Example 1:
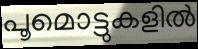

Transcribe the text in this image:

പൂമൊട്ടുകളിൽ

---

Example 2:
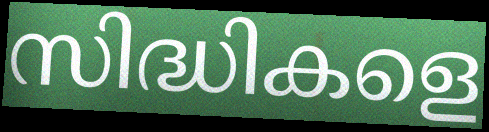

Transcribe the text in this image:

സിദ്ധികളെ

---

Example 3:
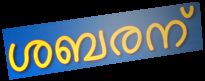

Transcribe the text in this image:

ശബരന്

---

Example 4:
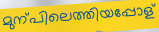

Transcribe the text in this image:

മുന്പിലെത്തിയപ്പോള്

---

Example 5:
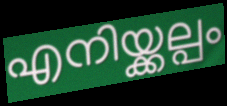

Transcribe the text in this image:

എനിയ്ക്കല്പം